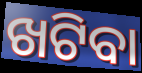
ଖଟିବା